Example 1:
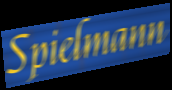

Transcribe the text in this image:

Spielmann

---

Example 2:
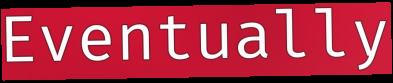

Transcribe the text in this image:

Eventually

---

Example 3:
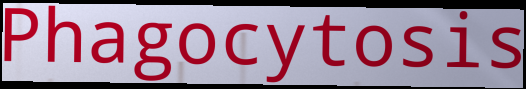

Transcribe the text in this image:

Phagocytosis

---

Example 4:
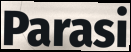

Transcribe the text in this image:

Parasi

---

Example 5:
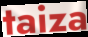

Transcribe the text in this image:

taiza